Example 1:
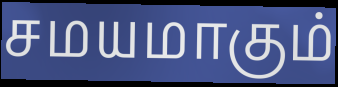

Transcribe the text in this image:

சமயமாகும்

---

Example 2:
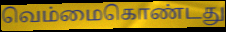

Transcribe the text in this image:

வெம்மைகொண்டது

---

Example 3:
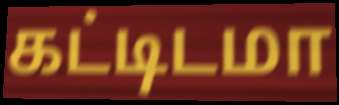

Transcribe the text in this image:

கட்டிடமா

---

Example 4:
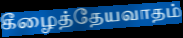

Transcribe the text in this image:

கீழைத்தேயவாதம்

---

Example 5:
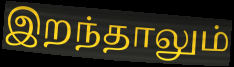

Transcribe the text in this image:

இறந்தாலும்